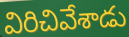
విరిచివేశాడు